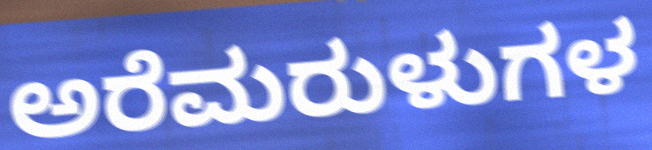
ಅರೆಮರುಳುಗಳ